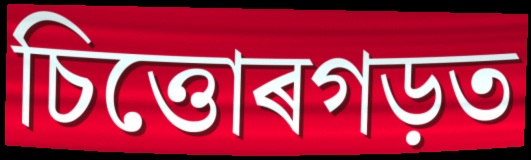
চিত্তোৰগড়ত